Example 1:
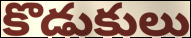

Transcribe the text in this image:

కొడుకులు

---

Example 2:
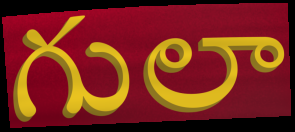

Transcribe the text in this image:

గులా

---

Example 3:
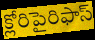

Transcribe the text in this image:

క్లోరిపైరిఫాస్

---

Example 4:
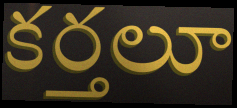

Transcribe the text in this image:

కర్తలూ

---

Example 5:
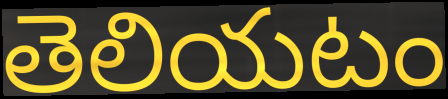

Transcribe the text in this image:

తెలియటం